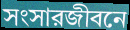
সংসারজীবনে